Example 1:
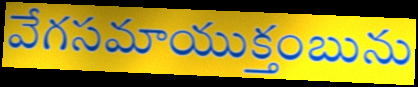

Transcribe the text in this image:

వేగసమాయుక్తంబును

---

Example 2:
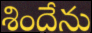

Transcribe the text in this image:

శిందేను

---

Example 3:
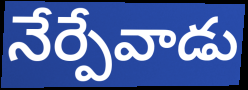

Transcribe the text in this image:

నేర్పేవాడు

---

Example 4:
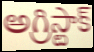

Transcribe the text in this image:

అగ్రిస్టాక్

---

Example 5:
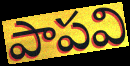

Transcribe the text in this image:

పాపవి